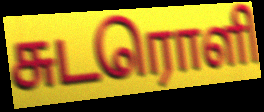
சுடரொளி